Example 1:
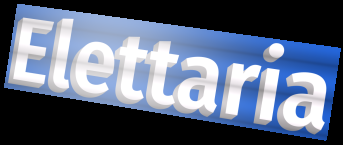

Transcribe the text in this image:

Elettaria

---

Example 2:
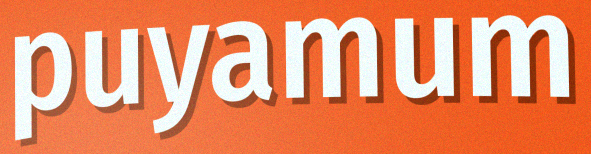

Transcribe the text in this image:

puyamum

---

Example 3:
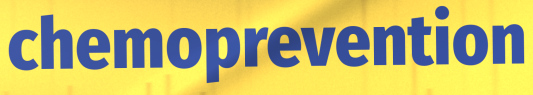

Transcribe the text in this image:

chemoprevention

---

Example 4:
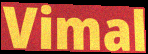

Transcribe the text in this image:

Vimal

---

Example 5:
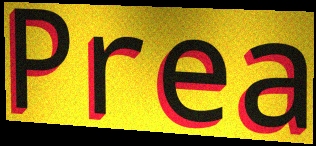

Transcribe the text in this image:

Prea